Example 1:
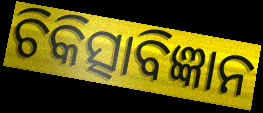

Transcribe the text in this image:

ଚିକିତ୍ସାବିଜ୍ଞାନ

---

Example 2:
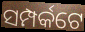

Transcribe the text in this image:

ସମ୍ପର୍କଟେ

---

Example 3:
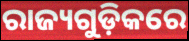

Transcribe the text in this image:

ରାଜ୍ୟଗୁଡ଼ିକରେ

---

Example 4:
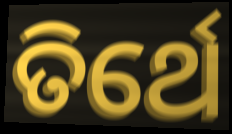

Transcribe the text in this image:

ତିର୍ଥେ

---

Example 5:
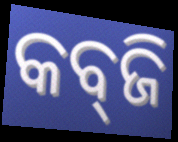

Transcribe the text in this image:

କବ୍‍ଜି